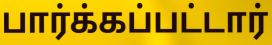
பார்க்கப்பட்டார்